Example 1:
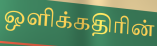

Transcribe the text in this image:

ஒளிக்கதிரின்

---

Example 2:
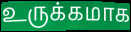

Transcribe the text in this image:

உருக்கமாக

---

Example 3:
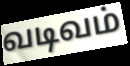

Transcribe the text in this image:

வடிவம்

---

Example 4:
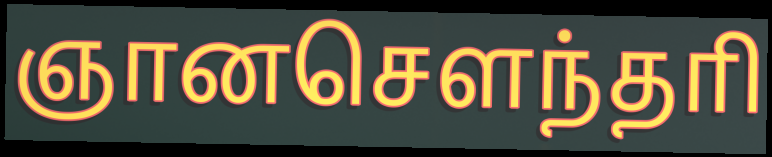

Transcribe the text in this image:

ஞானசெளந்தரி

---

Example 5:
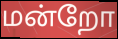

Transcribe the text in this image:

மன்றோ